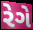
રેગે